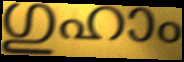
ഗുഹാം